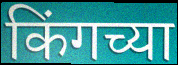
किंगच्या